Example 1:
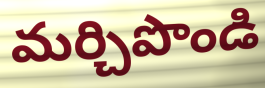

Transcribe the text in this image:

మర్చిపొండి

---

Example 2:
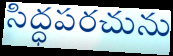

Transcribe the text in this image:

సిద్ధపరచును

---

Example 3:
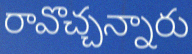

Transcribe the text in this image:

రావొచ్చన్నారు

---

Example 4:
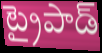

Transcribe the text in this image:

ట్రైపాడ్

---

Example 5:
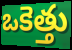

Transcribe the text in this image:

ఒకెత్తు